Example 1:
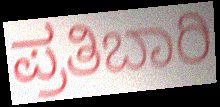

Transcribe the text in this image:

ಪ್ರತಿಬಾರಿ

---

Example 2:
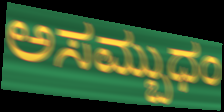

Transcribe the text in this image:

ಅಸಮ್ಬುಧಂ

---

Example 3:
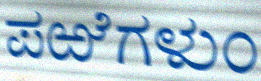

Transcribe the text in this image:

ಪಱೆಗಳುಂ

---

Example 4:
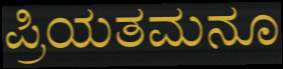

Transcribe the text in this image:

ಪ್ರಿಯತಮನೂ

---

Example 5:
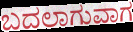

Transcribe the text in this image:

ಬದಲಾಗುವಾಗ